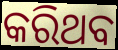
କରିଥବ